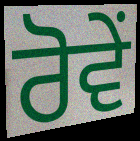
ਰੋਵੇਂ